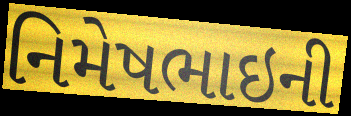
નિમેષભાઇની